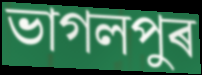
ভাগলপুৰ